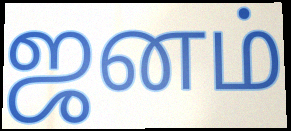
ஜனம்